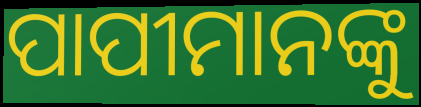
ପାପୀମାନଙ୍କୁ